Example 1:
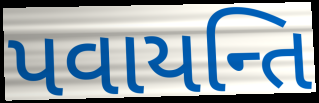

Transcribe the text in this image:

પવાયન્તિ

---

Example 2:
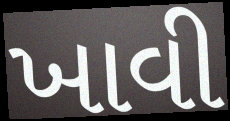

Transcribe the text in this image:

ખાવી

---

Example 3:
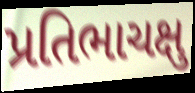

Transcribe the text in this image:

પ્રતિભાચક્ષુ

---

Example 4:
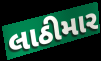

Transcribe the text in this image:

લાઠીમાર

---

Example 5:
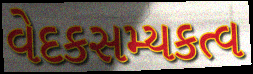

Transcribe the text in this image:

વેદકસમ્યકત્વ